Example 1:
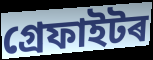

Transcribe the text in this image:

গ্ৰেফাইটৰ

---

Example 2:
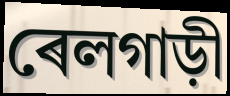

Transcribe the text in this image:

ৰেলগাড়ী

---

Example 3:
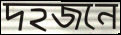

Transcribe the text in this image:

দহজনে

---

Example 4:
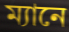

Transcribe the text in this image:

ম্যানে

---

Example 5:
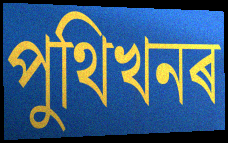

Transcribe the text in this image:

পুথিখনৰ